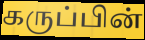
கருப்பின்